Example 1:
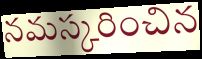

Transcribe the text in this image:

నమస్కరించిన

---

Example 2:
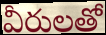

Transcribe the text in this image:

వీరులతో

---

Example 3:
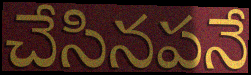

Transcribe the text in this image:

చేసినపనే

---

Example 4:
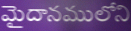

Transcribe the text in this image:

మైదానములోని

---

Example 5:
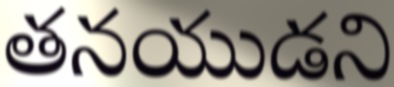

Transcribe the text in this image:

తనయుడని